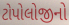
ટોપોલોજીનો